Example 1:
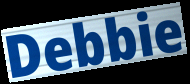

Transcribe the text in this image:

Debbie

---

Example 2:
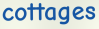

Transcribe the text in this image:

cottages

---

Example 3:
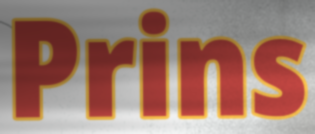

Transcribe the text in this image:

Prins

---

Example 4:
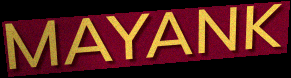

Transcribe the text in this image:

MAYANK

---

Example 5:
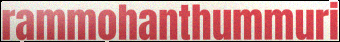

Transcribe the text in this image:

rammohanthummuri